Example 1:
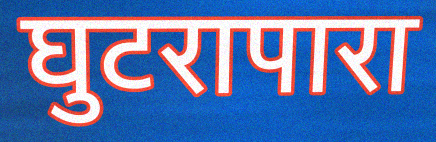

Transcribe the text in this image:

घुटरापारा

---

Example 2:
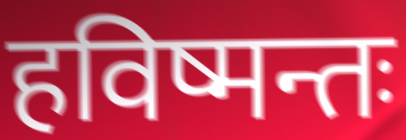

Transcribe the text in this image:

हविष्मन्तः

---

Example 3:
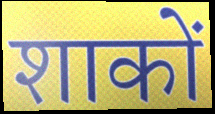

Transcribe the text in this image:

शाकों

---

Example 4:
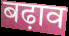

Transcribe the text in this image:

बढ़ाव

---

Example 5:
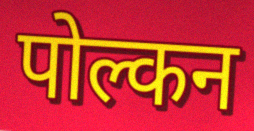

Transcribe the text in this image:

पोल्कन